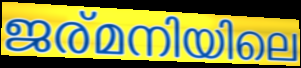
ജര്മനിയിലെ